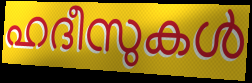
ഹദീസുകൾ